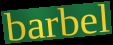
barbel